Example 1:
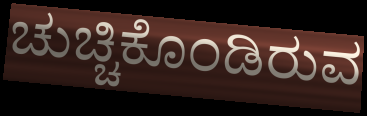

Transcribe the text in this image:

ಚುಚ್ಚಿಕೊಂಡಿರುವ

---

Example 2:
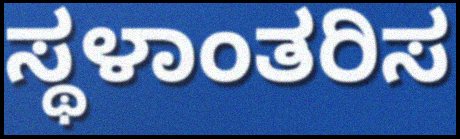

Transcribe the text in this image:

ಸ್ಥಳಾಂತರಿಸ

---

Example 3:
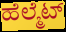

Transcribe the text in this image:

ಹೆಲ್ಮೆಟ್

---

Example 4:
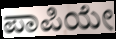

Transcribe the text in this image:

ಪಾಪಿಯೇ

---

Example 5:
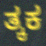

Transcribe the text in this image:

ತ್ಕಕ